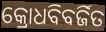
କ୍ରୋଧବିବର୍ଜିତ